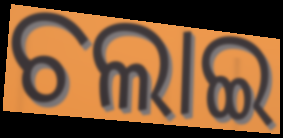
ଚଲାଇ